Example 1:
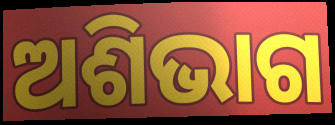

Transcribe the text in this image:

ଅଶିଭାଗ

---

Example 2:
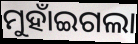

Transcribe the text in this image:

ମୁହାଁଇଗଲା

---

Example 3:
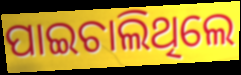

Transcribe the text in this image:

ପାଇଚାଲିଥିଲେ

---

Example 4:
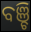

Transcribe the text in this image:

ବଞ୍ଚି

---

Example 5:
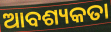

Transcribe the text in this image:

ଆବଶ୍ୟକତା